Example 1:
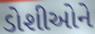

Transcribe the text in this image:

ડોશીઓને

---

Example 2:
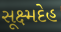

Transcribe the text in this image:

સૂક્ષ્મદેહ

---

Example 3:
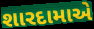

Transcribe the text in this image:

શારદામાએ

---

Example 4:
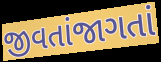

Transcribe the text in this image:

જીવતાંજાગતાં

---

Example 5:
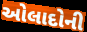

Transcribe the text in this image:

ઓલાદોની